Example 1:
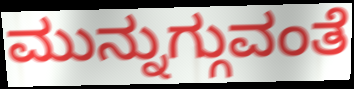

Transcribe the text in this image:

ಮುನ್ನುಗ್ಗುವಂತೆ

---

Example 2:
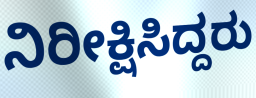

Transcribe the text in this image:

ನಿರೀಕ್ಷಿಸಿದ್ದರು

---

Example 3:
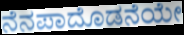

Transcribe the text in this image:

ನೆನಪಾದೊಡನೆಯೇ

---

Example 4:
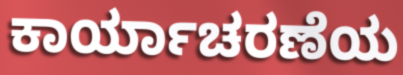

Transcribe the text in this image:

ಕಾರ್ಯಾಚರಣೆಯ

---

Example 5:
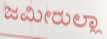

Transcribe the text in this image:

ಜಮೀರುಲ್ಲಾ